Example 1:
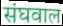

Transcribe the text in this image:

संघवाल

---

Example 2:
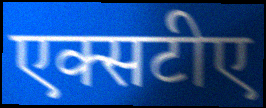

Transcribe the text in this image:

एक्सटीए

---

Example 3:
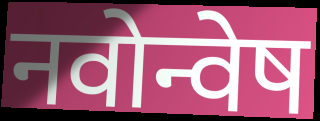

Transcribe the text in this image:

नवोन्वेष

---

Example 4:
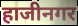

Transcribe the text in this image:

हाजीनगर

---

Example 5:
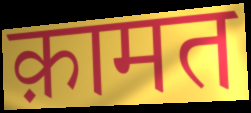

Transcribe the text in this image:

क़ामत